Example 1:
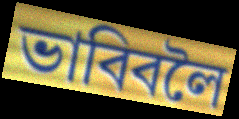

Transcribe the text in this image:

ভাবিবলৈ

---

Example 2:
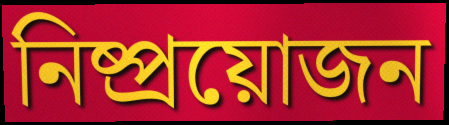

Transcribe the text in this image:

নিষ্প্ৰয়োজন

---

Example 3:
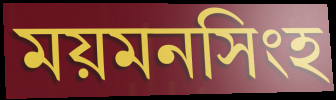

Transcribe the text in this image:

ময়মনসিংহ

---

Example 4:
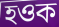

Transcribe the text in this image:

হওক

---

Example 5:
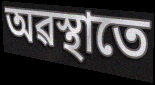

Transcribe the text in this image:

অৱস্থাতে